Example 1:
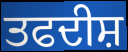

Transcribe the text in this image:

ਤਫਦੀਸ਼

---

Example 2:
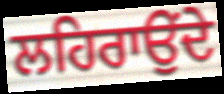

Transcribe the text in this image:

ਲਹਿਰਾਉਂਦੇ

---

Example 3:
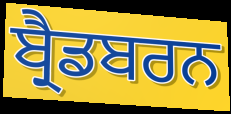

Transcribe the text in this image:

ਬ੍ਰੈਡਬਰਨ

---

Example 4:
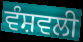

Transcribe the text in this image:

ਵੰਸ਼ਵਲੀ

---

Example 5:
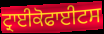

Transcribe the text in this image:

ਟ੍ਰਾਈਕੋਫਾਈਟਸ